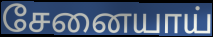
சேனையாய்